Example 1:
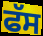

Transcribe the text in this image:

ਫੱਸ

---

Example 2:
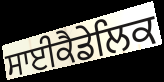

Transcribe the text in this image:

ਸਾਈਕੈਡੇਲਿਕ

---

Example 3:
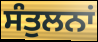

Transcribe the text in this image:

ਸੰਤੁਲਨਾਂ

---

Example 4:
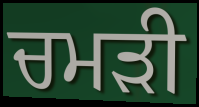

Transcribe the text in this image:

ਚਮਡ਼ੀ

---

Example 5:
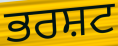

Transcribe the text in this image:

ਭਰਸ਼ਟ